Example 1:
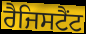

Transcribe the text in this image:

ਰੈਜਿਸਟੈਂਟ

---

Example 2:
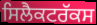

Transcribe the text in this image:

ਸਿਲੈਕਟਰੱਕਸ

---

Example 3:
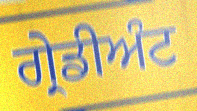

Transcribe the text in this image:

ਗ੍ਰੇਡੀਅੰਟ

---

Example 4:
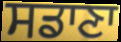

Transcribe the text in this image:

ਸਡਾਣਾ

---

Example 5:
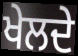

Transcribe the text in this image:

ਖੇਲਦੇ